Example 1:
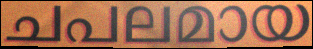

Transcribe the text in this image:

ചപലമായ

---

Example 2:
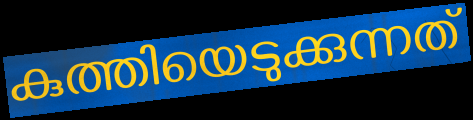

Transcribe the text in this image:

കുത്തിയെടുക്കുന്നത്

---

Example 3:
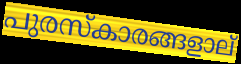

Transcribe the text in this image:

പുരസ്കാരങ്ങളാല്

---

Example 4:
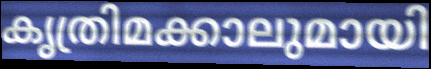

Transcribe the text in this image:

കൃത്രിമക്കാലുമായി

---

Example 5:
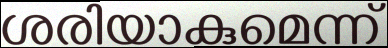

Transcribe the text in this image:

ശരിയാകുമെന്ന്